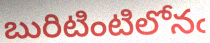
బురిటింటిలోనఁ